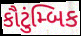
કૌટુંમ્બિક